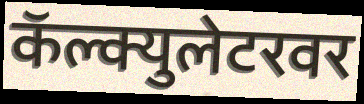
कॅल्क्युलेटरवर